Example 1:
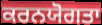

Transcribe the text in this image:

ਕਰਨਯੋਗਤਾ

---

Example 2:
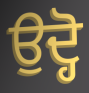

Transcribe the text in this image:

ਉਦ੍ਹੋ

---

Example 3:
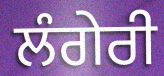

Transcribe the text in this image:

ਲੰਗੇਰੀ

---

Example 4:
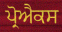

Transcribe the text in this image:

ਪ੍ਰੋਐਕਸ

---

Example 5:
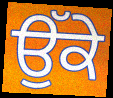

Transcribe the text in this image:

ਉੱਕੇ